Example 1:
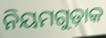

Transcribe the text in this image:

ନିୟମଗୁଡ଼ାକ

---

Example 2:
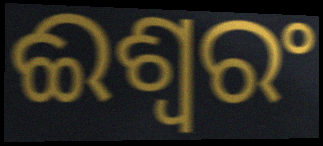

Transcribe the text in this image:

ଈଶ୍ୱରଂ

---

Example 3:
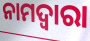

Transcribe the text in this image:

ନାମଦ୍ଵାରା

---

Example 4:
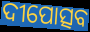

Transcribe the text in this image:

ଦୀପୋତ୍ସବ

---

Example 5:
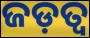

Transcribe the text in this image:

ଜଡ଼ତ୍ଵ